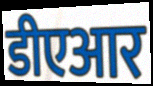
डीएआर